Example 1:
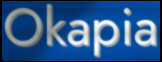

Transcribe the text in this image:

Okapia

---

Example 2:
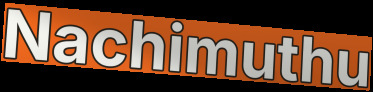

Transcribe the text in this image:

Nachimuthu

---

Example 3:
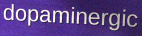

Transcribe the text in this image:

dopaminergic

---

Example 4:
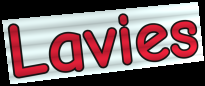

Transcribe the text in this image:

Lavies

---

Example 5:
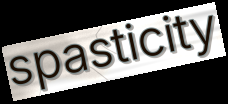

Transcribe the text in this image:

spasticity